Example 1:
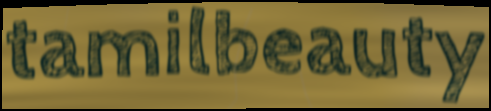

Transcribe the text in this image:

tamilbeauty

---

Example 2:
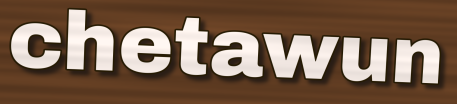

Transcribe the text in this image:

chetawun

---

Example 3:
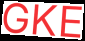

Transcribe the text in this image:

GKE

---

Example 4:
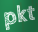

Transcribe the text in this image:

pkt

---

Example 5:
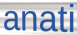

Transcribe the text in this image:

anati